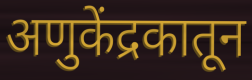
अणुकेंद्रकातून